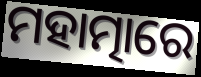
ମହାତ୍ମାରେ